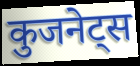
कुजनेट्स